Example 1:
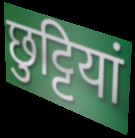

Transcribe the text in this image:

छुट्टियां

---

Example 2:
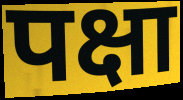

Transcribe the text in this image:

पक्षा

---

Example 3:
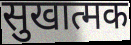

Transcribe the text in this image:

सुखात्मक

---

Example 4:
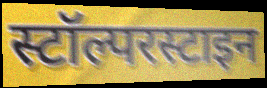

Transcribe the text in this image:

स्टॉल्परस्टाइन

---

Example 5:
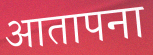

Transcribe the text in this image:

आतापना